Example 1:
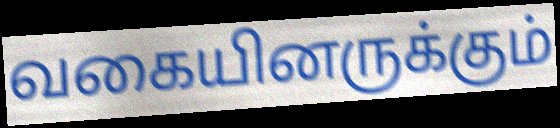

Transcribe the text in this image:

வகையினருக்கும்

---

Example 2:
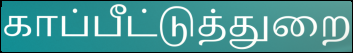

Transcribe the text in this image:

காப்பீட்டுத்துறை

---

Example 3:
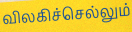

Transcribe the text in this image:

விலகிச்செல்லும்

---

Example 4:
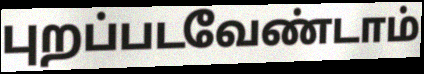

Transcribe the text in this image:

புறப்படவேண்டாம்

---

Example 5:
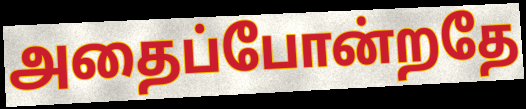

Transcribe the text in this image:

அதைப்போன்றதே